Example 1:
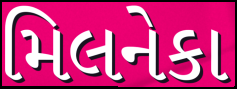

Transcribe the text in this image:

મિલનેકા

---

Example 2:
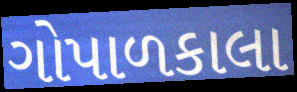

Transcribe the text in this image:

ગોપાળકાલા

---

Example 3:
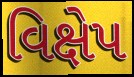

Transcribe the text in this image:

વિક્ષેપ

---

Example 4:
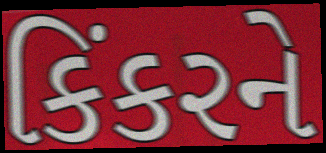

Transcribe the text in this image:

કિંકરને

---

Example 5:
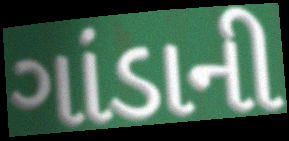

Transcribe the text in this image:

ગાંડાની